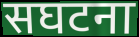
सघटना